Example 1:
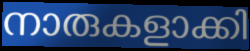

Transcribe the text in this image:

നാരുകളാക്കി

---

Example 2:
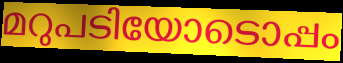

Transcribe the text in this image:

മറുപടിയോടൊപ്പം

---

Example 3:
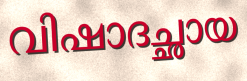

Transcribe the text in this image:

വിഷാദച്ഛായ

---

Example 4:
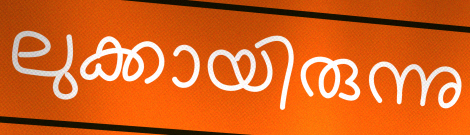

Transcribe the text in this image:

ലുക്കായിരുന്നു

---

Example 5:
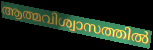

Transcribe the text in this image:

ആത്മവിശ്വാസത്തിൽ